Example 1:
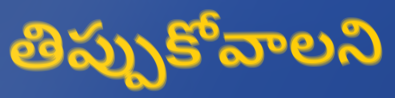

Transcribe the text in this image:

తిప్పుకోవాలని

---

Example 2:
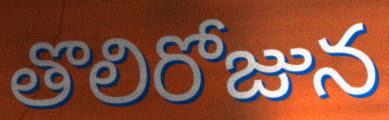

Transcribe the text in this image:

తొలిరోజున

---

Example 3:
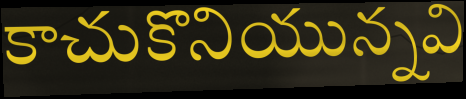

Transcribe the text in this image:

కాచుకొనియున్నవి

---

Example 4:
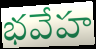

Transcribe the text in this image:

భవేహ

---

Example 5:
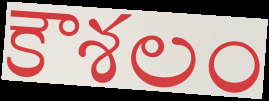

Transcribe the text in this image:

కౌశలం